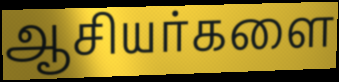
ஆசியர்களை